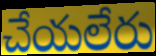
చేయలేరు